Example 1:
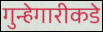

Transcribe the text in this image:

गुन्हेगारीकडे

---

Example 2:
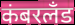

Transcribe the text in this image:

कंबरलँड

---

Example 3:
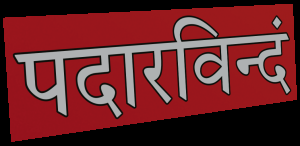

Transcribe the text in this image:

पदारविन्दं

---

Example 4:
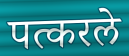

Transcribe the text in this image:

पत्करले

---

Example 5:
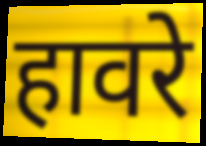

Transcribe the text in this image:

हावरे